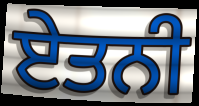
ਏਤਨੀ